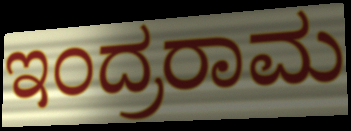
ಇಂದ್ರರಾಮ